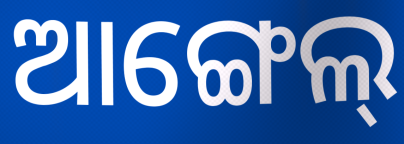
ଆଙ୍ଗେଲ୍